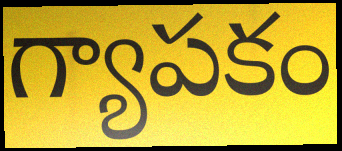
గ్యాపకం